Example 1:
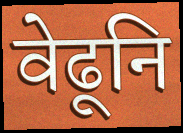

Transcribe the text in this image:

वेढूनि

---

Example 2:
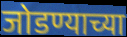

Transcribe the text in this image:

जोडण्याच्या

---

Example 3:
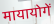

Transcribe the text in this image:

मायायोगें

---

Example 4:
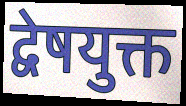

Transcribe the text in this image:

द्वेषयुक्त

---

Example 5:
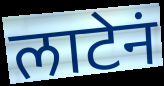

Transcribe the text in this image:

लाटेनं